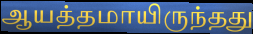
ஆயத்தமாயிருந்தது